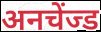
अनचेंज्ड